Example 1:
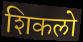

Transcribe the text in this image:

शिकलो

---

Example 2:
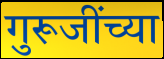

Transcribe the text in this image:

गुरूजींच्या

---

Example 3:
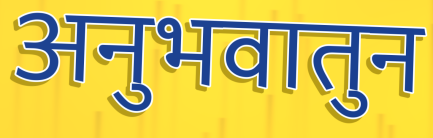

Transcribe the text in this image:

अनुभवातुन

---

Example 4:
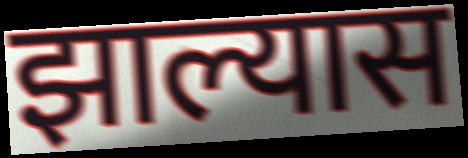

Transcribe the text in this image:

झाल्यास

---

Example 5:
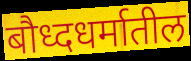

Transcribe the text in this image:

बौध्दधर्मातील